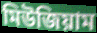
মিউজিয়াম